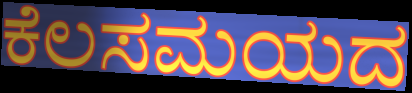
ಕೆಲಸಮಯದ